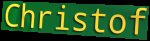
Christof